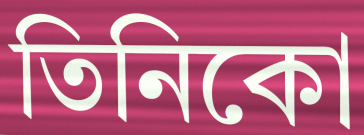
তিনিকো